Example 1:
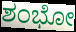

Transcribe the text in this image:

ಶಂಭೋ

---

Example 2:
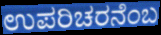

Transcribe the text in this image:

ಉಪರಿಚರನೆಂಬ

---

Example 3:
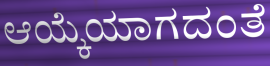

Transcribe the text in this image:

ಆಯ್ಕೆಯಾಗದಂತೆ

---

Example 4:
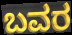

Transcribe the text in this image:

ಬವರ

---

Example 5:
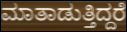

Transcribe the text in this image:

ಮಾತಾಡುತ್ತಿದ್ದರೆ